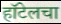
हॉटेलचा